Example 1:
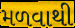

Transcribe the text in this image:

મળવાથી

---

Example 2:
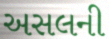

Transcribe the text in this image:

અસલની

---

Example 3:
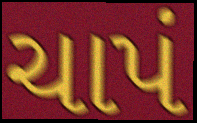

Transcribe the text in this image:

ચાપં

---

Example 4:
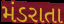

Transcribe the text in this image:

મંડરાતા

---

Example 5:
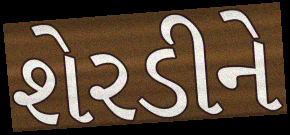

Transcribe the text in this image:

શેરડીને